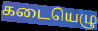
கடையெழு